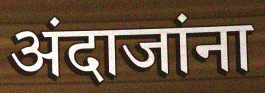
अंदाजांना